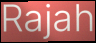
Rajah